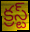
క్రస్ట్